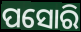
ପସୋରି